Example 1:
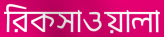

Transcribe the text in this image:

রিকসাওয়ালা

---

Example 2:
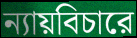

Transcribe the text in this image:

ন্যায়বিচারে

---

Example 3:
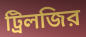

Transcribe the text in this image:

ট্রিলজির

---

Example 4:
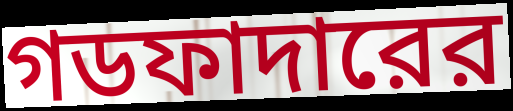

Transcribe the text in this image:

গডফাদারের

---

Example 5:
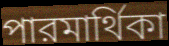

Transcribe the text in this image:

পারমার্থিকা